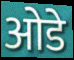
ओडे